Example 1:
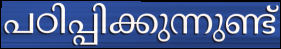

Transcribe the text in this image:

പഠിപ്പിക്കുന്നുണ്ട്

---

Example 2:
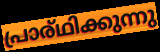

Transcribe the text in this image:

പ്രാര്ഥിക്കുന്നു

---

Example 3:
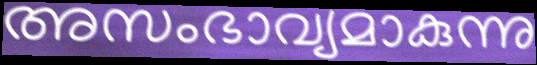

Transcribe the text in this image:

അസംഭാവ്യമാകുന്നു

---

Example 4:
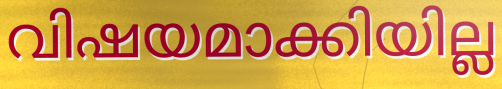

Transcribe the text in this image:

വിഷയമാക്കിയില്ല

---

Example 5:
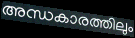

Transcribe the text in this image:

അന്ധകാരത്തിലും